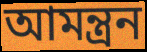
আমন্ত্রন